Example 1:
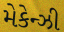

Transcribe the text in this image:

મેકેન્ઝી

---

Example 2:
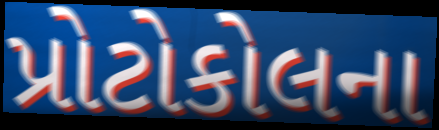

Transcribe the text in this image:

પ્રોટોકોલના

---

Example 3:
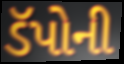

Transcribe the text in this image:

ડૅપોની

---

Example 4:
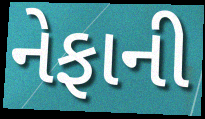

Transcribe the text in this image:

નેફાની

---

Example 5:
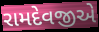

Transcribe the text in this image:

રામદેવજીએ